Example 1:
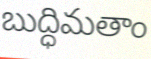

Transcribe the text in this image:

బుద్ధిమతాం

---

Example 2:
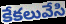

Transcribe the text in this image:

కేకలువేసి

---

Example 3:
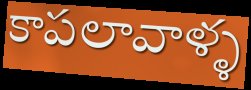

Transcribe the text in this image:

కాపలావాళ్ళ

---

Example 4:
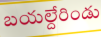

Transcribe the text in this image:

బయల్దేరిండు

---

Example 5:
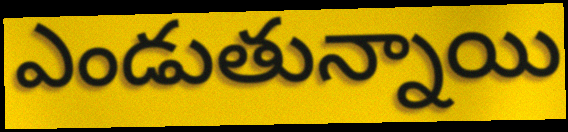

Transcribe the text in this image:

ఎండుతున్నాయి